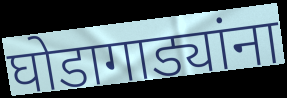
घोडागाड्यांना